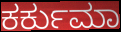
ಕರ್ಕುಮಾ